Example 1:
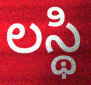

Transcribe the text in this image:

లస్థి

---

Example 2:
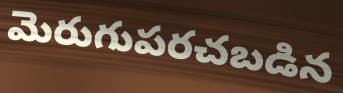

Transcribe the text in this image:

మెరుగుపరచబడిన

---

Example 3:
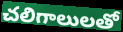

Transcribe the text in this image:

చలిగాలులతో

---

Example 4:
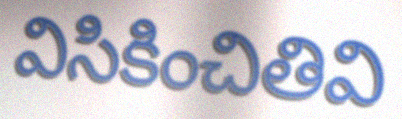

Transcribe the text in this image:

విసికించితివి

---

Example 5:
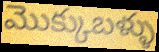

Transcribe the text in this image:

మొక్కుబళ్ళు